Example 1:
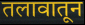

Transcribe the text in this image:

तलावातून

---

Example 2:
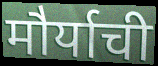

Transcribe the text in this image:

मौर्याची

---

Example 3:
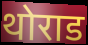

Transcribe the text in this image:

थोराड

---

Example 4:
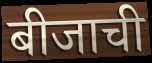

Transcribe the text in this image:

बीजाची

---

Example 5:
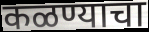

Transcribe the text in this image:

कळण्याचा